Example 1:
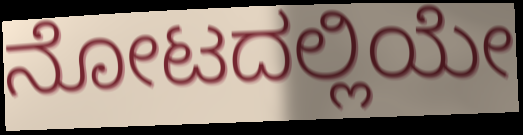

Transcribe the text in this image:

ನೋಟದಲ್ಲಿಯೇ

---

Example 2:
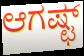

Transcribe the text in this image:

ಆಗಷ್ಟ್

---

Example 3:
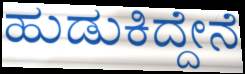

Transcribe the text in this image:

ಹುಡುಕಿದ್ದೇನೆ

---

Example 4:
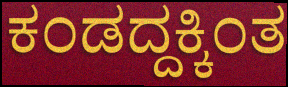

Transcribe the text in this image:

ಕಂಡದ್ದಕ್ಕಿಂತ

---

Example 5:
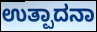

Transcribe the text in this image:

ಉತ್ಪಾದನಾ